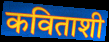
कविताशी